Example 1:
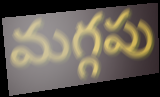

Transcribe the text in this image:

మగ్గపు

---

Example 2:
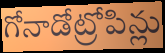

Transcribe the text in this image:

గోనాడోట్రోపిన్లు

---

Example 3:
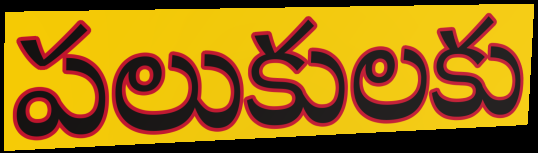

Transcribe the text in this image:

పలుకులకు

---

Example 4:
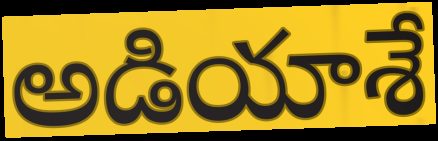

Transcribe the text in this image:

అడియాశే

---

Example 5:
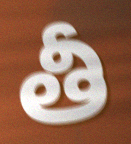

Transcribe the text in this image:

తీ